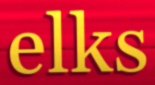
elks